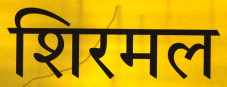
शिरमल